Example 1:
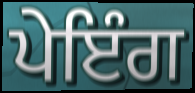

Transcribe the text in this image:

ਪੇਇੰਗ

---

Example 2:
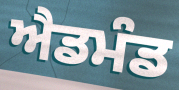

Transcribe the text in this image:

ਐਡਮੰਡ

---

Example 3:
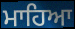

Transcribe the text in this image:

ਮਾਹਿਆ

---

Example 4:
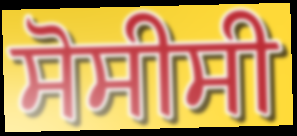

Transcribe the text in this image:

ਸੋਸੀਸੀ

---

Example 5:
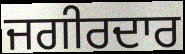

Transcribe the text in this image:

ਜਗੀਰਦਾਰ